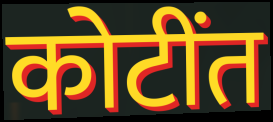
कोटींत